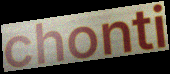
chonti